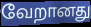
வேறானது